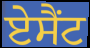
ਏਸੈਂਟ